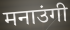
मनाउंगी